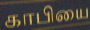
காபியை